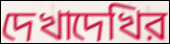
দেখাদেখির